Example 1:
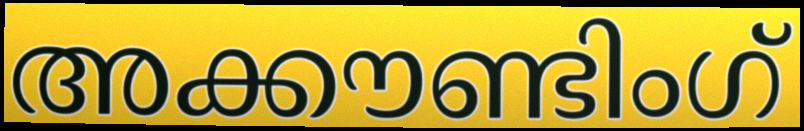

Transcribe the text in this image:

അക്കൗണ്ടിംഗ്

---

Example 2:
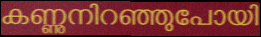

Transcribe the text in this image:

കണ്ണുനിറഞ്ഞുപോയി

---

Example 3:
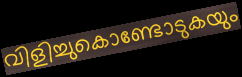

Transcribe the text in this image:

വിളിച്ചുകൊണ്ടോടുകയും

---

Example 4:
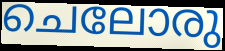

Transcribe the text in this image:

ചെലോരു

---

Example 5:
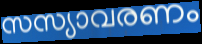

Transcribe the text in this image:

സസ്യാവരണം